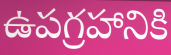
ఉపగ్రహానికి